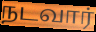
நடவார்